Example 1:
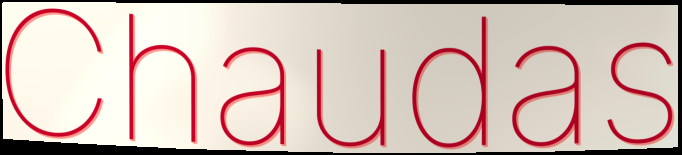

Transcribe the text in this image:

Chaudas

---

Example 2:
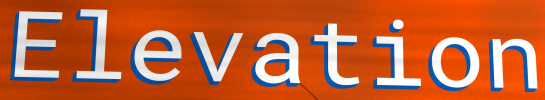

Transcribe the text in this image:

Elevation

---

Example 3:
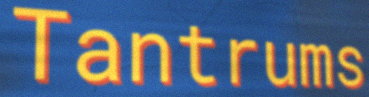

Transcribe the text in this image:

Tantrums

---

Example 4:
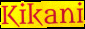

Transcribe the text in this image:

Kikani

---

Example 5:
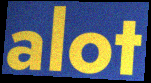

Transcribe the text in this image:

alot